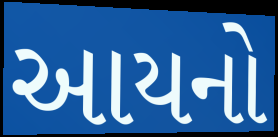
આયનો